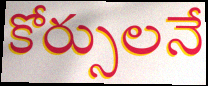
కోర్సులనే